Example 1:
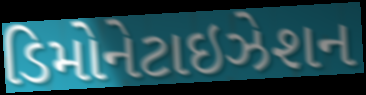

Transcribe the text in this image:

ડિમોનેટાઇઝેશન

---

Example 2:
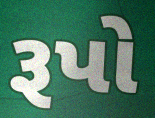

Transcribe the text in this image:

રૂપો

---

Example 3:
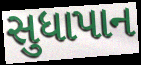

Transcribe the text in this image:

સુધાપાન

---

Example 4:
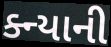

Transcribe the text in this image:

ક્ન્યાની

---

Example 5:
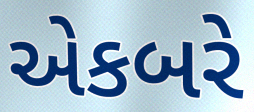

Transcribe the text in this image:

એકબરે